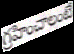
గ్రహించాలంటే